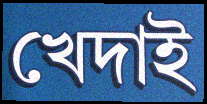
খেদাই